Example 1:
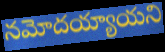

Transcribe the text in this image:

నమోదయ్యాయని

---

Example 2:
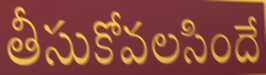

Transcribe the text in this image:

తీసుకోవలసిందే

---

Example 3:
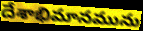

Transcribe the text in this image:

దేశాభిమానమును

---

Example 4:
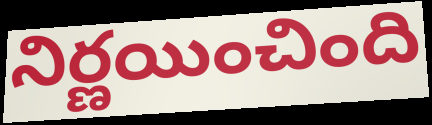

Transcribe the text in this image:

నిర్ణయించింది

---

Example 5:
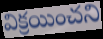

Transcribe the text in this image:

విక్రయించని